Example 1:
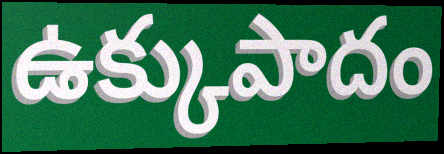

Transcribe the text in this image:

ఉక్కుపాదం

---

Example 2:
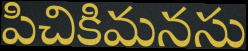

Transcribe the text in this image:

పిచికిమనసు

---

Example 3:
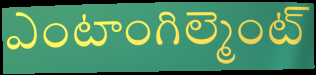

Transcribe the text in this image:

ఎంటాంగిల్మెంట్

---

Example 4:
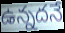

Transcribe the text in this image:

ఉన్నదనే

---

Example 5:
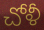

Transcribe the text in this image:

చోళీ